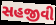
સહજીવી